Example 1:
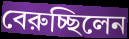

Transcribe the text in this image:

বেরুচ্ছিলেন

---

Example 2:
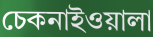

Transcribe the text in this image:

চেকনাইওয়ালা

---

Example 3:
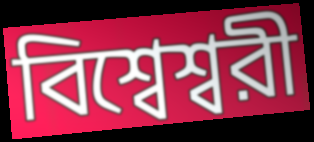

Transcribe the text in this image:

বিশ্বেশ্বরী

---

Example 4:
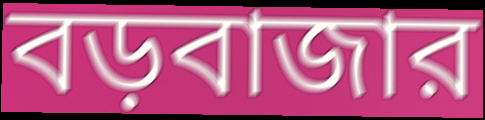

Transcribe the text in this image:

বড়বাজার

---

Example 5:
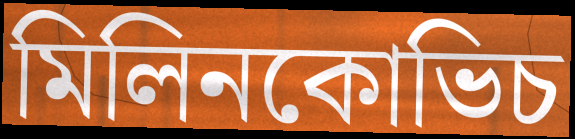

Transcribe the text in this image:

মিলিনকোভিচ